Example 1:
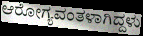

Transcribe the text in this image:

ಆರೋಗ್ಯವಂತಳಾಗಿದ್ದಳು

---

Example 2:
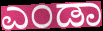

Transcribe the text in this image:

ಎಂಡಾ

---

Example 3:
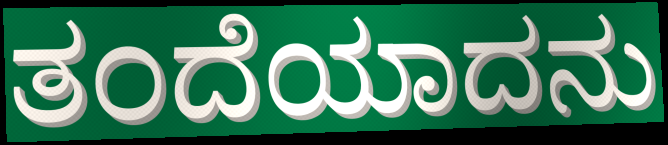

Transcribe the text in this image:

ತಂದೆಯಾದನು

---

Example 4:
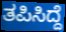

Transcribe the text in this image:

ತಪಿಸಿದ್ದೆ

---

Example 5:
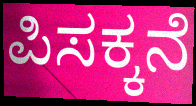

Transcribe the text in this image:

ಪಿಸಕ್ಕನೆ